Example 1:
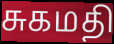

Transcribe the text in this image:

சுகமதி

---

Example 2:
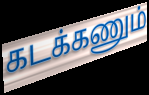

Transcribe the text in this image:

கடக்கணும்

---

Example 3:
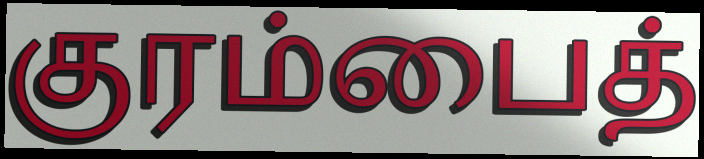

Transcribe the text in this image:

குரம்பைத்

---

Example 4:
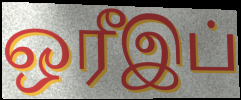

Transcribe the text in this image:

ஒரீஇப்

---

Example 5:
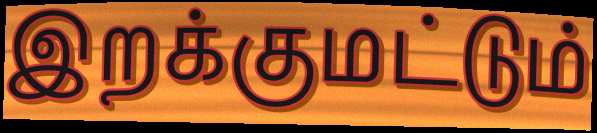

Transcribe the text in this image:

இறக்குமட்டும்